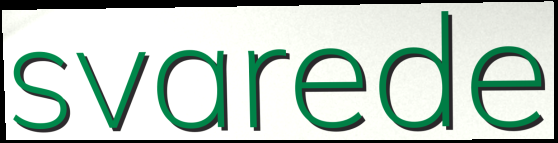
svarede